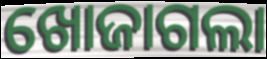
ଖୋଜାଗଲା